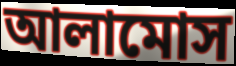
আলামোস